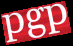
pgp